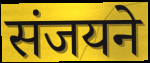
संजयने